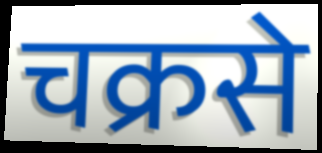
चक्रसे